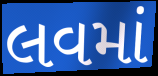
લવમાં